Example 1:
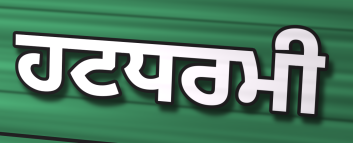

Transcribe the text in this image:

ਹਟਧਰਮੀ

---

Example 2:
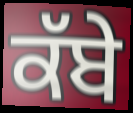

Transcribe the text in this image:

ਕੱਬੇ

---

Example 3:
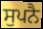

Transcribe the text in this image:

ਸੁਪਨੈ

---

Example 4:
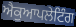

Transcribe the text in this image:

ਐਕੁਆਪਲੇਟਿੰਗ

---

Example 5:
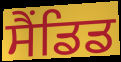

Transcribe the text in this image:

ਸੈਂਡਿਡ